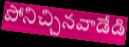
పోనిచ్చినవాడేడి